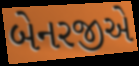
બેનરજીએ